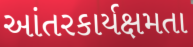
આંતરકાર્યક્ષમતા